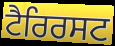
ਟੈਰਿਰਸਟ